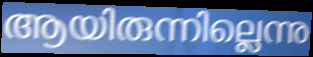
ആയിരുന്നില്ലെന്നു